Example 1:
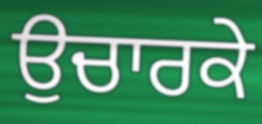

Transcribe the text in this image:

ਉਚਾਰਕੇ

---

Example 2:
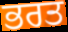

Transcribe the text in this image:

ਭਰਤ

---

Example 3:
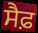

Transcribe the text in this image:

ਸੈਫ਼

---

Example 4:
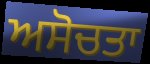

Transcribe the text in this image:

ਅਸੋਚਤਾ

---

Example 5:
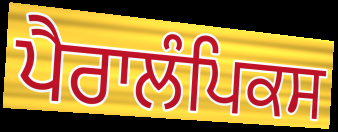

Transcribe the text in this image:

ਪੈਰਾਲੰਪਿਕਸ